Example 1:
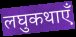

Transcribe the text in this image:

लघुकथाएँ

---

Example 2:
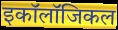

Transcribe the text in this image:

इकॉलॉजिकल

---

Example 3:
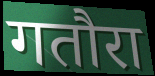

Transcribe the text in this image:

गतौरा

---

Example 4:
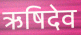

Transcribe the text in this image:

ऋषिदेव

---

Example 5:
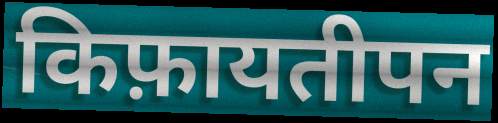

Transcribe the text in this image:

किफ़ायतीपन